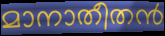
മാനാതീതൻ